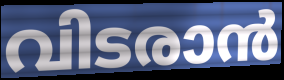
വിടരാൻ